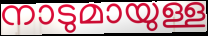
നാടുമായുള്ള